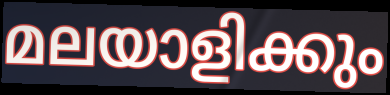
മലയാളിക്കും